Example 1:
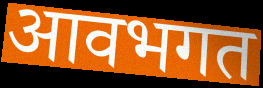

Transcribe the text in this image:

आवभगत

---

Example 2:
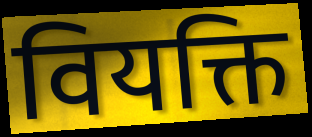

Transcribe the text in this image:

वियक्ति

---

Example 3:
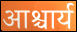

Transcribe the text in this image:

आश्चार्य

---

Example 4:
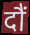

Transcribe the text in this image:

दौं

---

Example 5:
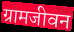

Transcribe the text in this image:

ग्रामजीवन